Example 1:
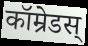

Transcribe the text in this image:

कॉम्रेडस्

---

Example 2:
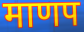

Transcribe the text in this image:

माणप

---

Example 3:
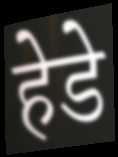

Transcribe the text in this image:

हेडे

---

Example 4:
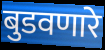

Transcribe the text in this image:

बुडवणारे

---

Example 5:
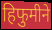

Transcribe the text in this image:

हिफुमीने